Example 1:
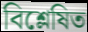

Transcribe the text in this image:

বিশ্লেষিত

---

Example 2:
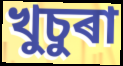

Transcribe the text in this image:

খুচুৰা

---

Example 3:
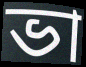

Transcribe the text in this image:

ভা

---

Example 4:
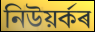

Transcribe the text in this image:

নিউয়ৰ্কৰ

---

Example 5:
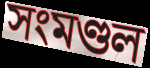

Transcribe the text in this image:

সংমণ্ডল